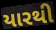
યારથી